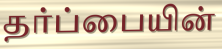
தர்ப்பையின்